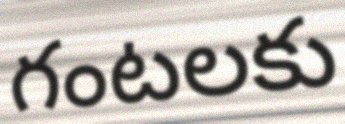
గంటలకు